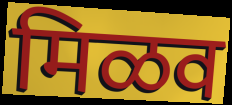
मिळव